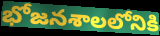
భోజనశాలలోనికి